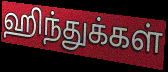
ஹிந்துக்கள்